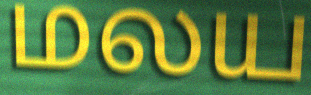
மலய